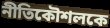
নীতিকৌশলকে